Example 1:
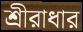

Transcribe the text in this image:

শ্রীরাধার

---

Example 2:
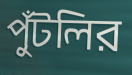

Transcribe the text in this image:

পুঁটলির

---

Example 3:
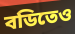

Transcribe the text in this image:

বডিতেও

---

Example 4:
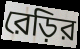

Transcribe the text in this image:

রেড়ির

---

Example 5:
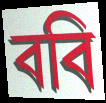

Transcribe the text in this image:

ববি